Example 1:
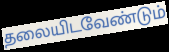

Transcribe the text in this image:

தலையிடவேண்டும்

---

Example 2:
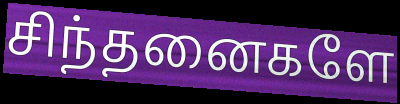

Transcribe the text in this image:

சிந்தனைகளே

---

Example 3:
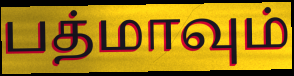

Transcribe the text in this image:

பத்மாவும்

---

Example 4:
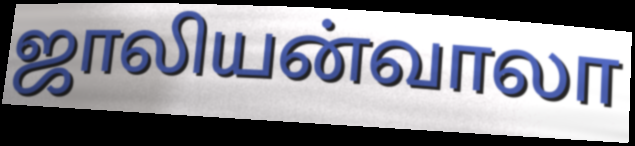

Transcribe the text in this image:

ஜாலியன்வாலா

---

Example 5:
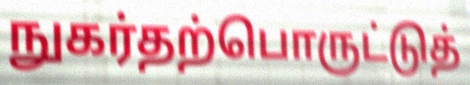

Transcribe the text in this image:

நுகர்தற்பொருட்டுத்